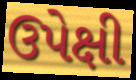
ઉપેક્ષી